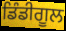
ਡਿੰਡੀਗੂਲ